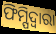
ଫିମ୍ପିଦ୍ଵାରା